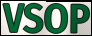
VSOP